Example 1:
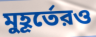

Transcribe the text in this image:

মুহূর্তেরও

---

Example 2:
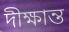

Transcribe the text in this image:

দীক্ষান্ত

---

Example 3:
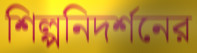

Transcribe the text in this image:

শিল্পনিদর্শনের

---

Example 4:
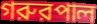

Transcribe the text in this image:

গরুরপাল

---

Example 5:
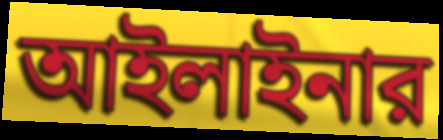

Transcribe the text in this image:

আইলাইনার